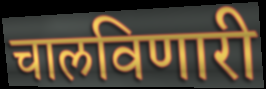
चालविणारी